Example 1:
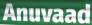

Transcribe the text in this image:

Anuvaad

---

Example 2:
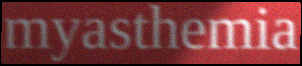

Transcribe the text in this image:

myasthemia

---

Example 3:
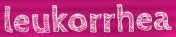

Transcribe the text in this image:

leukorrhea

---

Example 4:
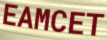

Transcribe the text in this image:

EAMCET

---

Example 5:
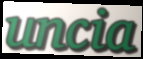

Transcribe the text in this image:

uncia